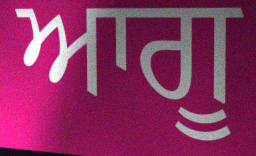
ਆਗੂ